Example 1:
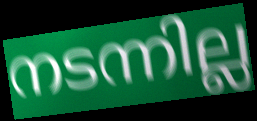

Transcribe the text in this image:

നടന്നില്ല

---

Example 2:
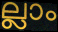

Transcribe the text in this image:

ല്ലാം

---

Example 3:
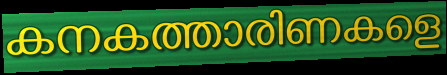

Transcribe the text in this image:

കനകത്താരിണകളെ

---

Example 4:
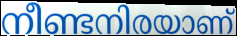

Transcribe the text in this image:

നീണ്ടനിരയാണ്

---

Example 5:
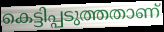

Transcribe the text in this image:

കെട്ടിപ്പടുത്തതാണ്